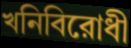
খনিবিরোধী